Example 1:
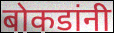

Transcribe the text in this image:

बोकडांनी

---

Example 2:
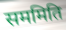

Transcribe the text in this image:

सममिति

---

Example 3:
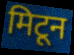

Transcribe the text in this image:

मिटून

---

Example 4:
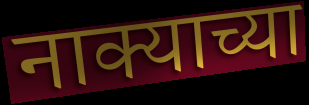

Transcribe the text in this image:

नाक्याच्या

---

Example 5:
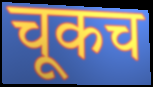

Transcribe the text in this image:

चूकच